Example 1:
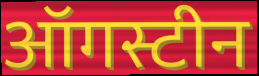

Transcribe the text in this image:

ऑगस्टीन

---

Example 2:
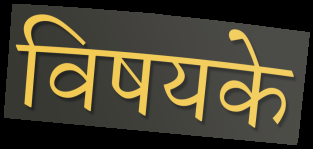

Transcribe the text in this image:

विषयके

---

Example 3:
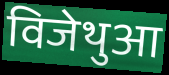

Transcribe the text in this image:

विजेथुआ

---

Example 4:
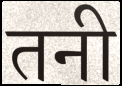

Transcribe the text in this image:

तनी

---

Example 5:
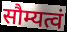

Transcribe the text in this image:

सौम्यत्वं